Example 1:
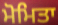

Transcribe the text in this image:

ਮੋਮਿਤਾ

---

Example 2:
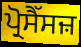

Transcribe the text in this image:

ਪ੍ਰੋਸੈੱਸਜ਼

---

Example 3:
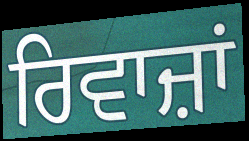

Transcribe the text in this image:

ਰਿਵਾਜ਼ਾਂ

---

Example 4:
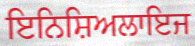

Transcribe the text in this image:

ਇਨਿਸ਼ਿਅਲਾਇਜ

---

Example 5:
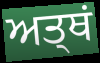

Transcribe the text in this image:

ਅਤ੍ਥਂ